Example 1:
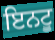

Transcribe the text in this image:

ਇਨਟੂ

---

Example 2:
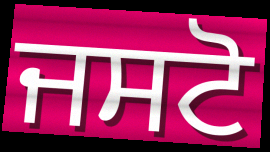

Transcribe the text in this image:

ਜਸਟੋ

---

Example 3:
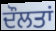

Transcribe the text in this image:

ਦੌਲਤਾਂ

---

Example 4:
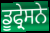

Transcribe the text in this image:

ਡੂਫ੍ਰੇਸਨੇ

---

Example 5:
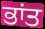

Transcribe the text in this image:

ਭਾਂਤ